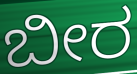
ಬೀರ